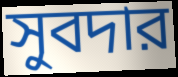
সুবদার